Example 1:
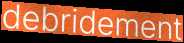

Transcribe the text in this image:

debridement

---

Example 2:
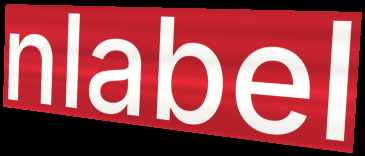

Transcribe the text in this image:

nlabel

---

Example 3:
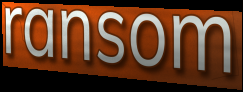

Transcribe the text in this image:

ransom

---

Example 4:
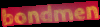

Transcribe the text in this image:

bondmen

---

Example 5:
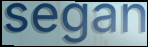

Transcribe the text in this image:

segan